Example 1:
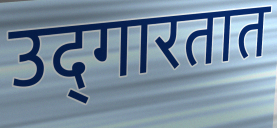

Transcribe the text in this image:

उद्‌गारतात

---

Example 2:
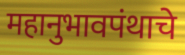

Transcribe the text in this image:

महानुभावपंथाचे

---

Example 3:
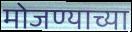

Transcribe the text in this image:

मोजण्याच्या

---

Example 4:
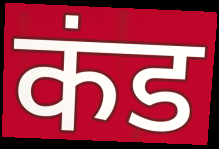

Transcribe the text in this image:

कंड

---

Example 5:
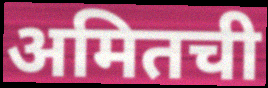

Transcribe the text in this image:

अमितची